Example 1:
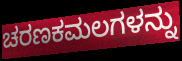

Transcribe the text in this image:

ಚರಣಕಮಲಗಳನ್ನು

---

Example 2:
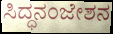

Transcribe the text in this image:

ಸಿದ್ಧನಂಜೇಶನ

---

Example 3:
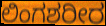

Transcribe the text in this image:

ಲಿಂಗಶರೀರ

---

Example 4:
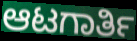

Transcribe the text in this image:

ಆಟಗಾರ್ತಿ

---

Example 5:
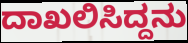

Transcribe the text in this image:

ದಾಖಲಿಸಿದ್ದನು